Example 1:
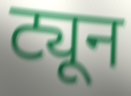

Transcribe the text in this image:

ट्यून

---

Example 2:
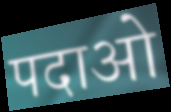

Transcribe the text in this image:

पदाओ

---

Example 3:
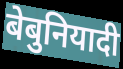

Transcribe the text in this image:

बेबुनियादी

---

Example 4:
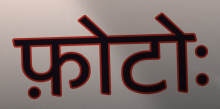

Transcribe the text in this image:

फ़ोटोः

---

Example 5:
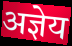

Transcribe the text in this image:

अज्ञेय